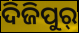
ଦିଜିପୁର୍